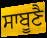
ਸਾਬੂਣੈ